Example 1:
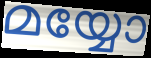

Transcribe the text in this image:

മയ്യോ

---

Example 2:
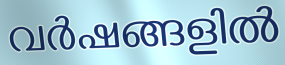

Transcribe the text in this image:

വർഷങ്ങളിൽ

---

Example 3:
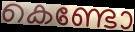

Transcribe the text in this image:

കെണ്ടോ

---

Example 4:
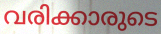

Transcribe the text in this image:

വരിക്കാരുടെ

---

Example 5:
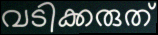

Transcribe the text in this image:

വടിക്കരുത്